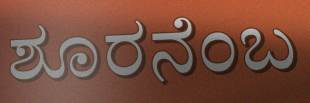
ಶೂರನೆಂಬ